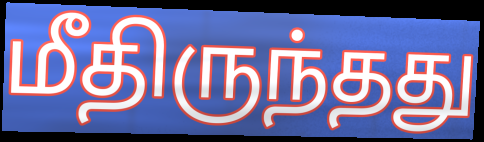
மீதிருந்தது